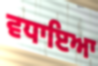
ਵਧਾਇਆ